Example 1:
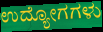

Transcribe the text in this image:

ಉದ್ಯೋಗಗಳು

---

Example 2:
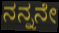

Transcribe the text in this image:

ನನ್ನನೇ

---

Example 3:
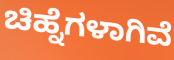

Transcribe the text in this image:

ಚಿಹ್ನೆಗಳಾಗಿವೆ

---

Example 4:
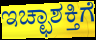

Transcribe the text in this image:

ಇಚ್ಛಾಶಕ್ತಿಗೆ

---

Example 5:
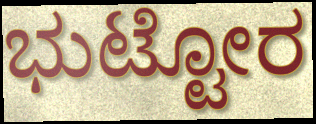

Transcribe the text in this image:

ಭುಟ್ಟೋರ